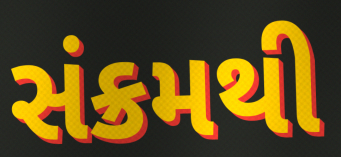
સંક્રમથી